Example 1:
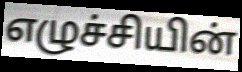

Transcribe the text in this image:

எழுச்சியின்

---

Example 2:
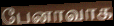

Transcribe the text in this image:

பேனாவாக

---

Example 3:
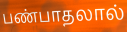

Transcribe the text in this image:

பண்பாதலால்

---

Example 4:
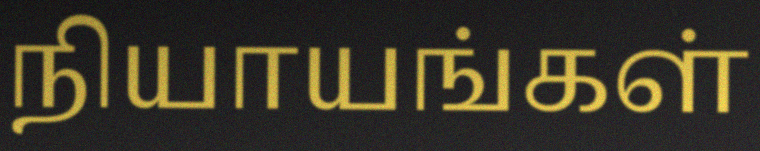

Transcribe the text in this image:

நியாயங்கள்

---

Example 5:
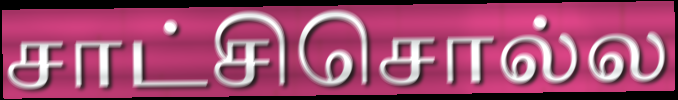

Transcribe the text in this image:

சாட்சிசொல்ல